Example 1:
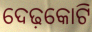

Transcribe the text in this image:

ଦେଢ଼କୋଟି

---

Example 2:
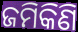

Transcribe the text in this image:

ଜମିକିଣି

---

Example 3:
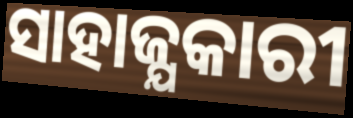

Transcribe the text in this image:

ସାହାଜ୍ଯକାରୀ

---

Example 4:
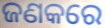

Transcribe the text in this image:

ଜଣକରେ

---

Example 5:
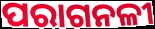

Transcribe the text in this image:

ପରାଗନଳୀ